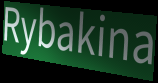
Rybakina